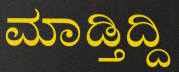
ಮಾಡ್ತಿದ್ದಿ